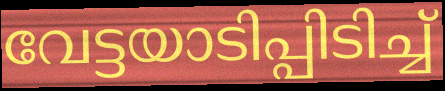
വേട്ടയാടിപ്പിടിച്ച്